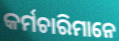
କର୍ମଚାରିମାନେ